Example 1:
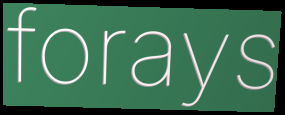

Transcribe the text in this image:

forays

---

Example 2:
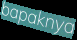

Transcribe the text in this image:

bapaknya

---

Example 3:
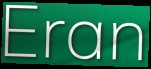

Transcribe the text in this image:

Eran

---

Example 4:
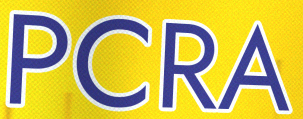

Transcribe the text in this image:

PCRA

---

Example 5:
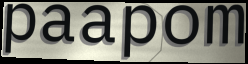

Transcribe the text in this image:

paapom